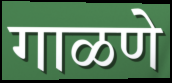
गाळणे